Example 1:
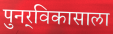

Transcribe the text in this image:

पुनर्विकासाला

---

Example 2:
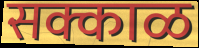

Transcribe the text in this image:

सक्काळ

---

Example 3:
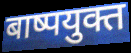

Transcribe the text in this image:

बाष्पयुक्त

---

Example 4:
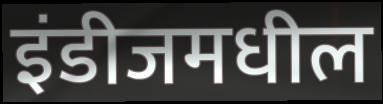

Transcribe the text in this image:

इंडीजमधील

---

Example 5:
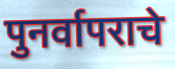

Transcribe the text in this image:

पुनर्वापराचे